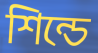
শিন্ডে